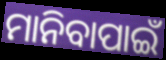
ମାନିବାପାଇଁ